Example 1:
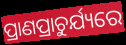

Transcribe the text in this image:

ପ୍ରାଣପ୍ରାଚୁର୍ଯ୍ୟରେ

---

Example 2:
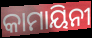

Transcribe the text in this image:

କାମାୟିନୀ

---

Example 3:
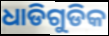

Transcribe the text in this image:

ଧାଡିଗୁଡିକ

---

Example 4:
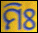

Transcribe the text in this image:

ମିଃ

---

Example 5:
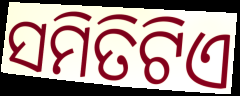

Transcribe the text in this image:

ସମିତିଟିଏ